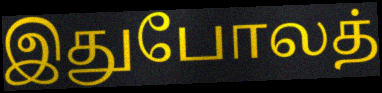
இதுபோலத்